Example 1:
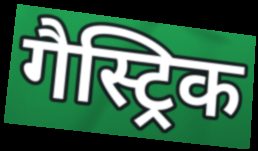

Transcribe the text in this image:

गैस्ट्रिक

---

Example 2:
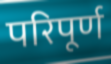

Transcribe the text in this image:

परिपूर्ण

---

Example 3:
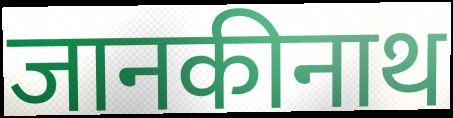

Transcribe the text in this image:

जानकीनाथ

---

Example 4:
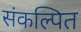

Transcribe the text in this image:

संकल्पित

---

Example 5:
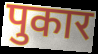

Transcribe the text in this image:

पुकार